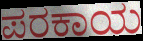
ಪರಕಾಯ